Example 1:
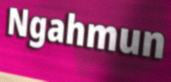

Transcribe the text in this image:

Ngahmun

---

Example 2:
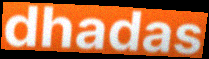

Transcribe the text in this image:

dhadas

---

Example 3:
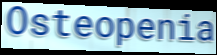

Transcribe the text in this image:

Osteopenia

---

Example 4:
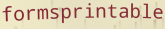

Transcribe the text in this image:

formsprintable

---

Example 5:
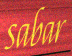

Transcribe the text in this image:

sabar